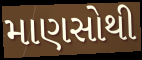
માણસોથી